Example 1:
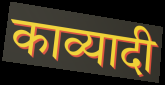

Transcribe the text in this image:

काव्यादी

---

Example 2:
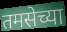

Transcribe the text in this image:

तमसेच्या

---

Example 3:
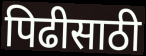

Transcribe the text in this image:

पिढीसाठी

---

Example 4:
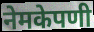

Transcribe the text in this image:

नेमकेपणी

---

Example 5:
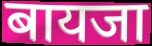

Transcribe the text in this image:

बायजा